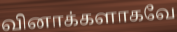
வினாக்களாகவே